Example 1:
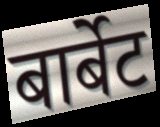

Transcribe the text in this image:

बार्बेट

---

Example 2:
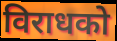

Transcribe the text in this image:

विराधको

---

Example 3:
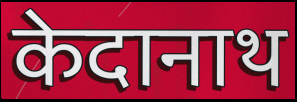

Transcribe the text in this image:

केदानाथ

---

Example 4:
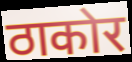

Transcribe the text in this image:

ठाकोर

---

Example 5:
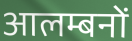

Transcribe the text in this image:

आलम्बनों